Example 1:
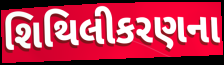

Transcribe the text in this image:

શિથિલીકરણના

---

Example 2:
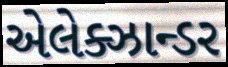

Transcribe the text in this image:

એલેક્ઝાન્ડર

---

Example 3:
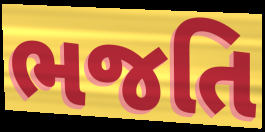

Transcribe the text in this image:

ભજતિ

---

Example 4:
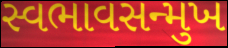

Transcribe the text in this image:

સ્વભાવસન્મુખ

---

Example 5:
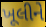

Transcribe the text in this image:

ખૂલીને